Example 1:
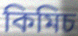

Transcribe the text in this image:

কিমিচ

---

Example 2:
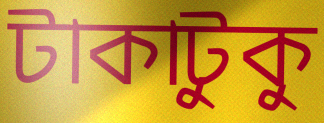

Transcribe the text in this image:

টাকাটুকু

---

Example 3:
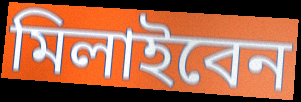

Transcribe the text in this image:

মিলাইবেন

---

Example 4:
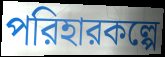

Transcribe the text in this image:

পরিহারকল্পে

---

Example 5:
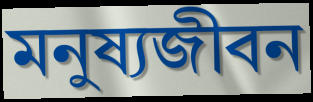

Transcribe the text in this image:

মনুষ্যজীবন